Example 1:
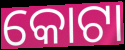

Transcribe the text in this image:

କୋଟା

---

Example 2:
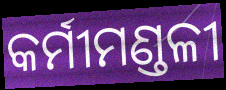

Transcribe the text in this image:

କର୍ମୀମଣ୍ଡଳୀ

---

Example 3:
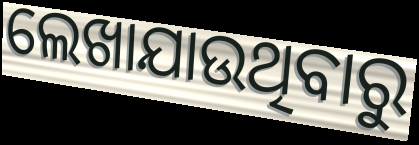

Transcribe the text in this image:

ଲେଖାଯାଉଥିବାରୁ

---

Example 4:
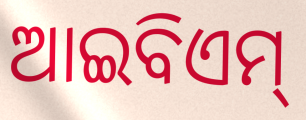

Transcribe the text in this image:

ଆଇବିଏମ୍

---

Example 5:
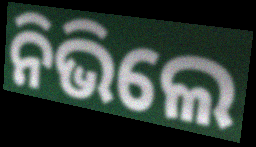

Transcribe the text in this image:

ନିଭିଲେ